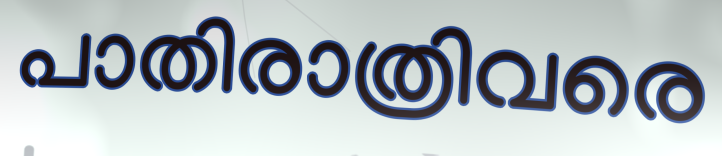
പാതിരാത്രിവരെ